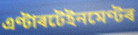
এণ্টাৰটেইনমেণ্টৰ